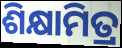
ଶିକ୍ଷାମିତ୍ର